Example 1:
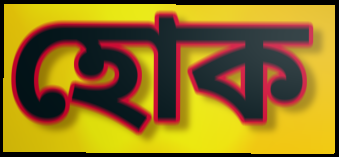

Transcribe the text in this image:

হোক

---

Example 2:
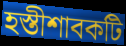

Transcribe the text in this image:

হস্তীশাবকটি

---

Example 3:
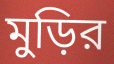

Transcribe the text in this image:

মুড়ির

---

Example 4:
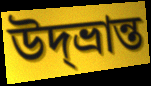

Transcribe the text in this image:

উদ্‌ভ্রান্ত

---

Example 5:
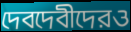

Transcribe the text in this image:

দেবদেবীদেরও